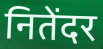
नितेंदर